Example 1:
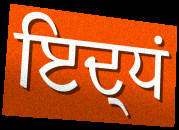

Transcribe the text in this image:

ਇਦ੍ਧਂ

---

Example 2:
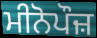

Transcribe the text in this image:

ਮੀਨੋਪੌਜ਼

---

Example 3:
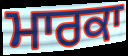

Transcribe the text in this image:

ਮਾਰਕਾ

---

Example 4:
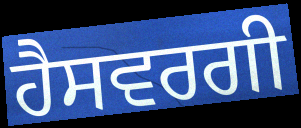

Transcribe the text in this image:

ਹੈਸਵਰਗੀ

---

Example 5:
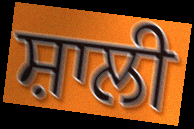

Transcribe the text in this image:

ਸ਼ਾਲੀ